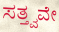
ಸತ್ತ್ವವೇ